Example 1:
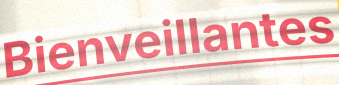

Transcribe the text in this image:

Bienveillantes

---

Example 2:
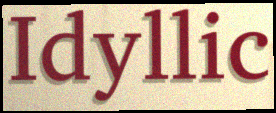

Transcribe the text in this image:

Idyllic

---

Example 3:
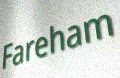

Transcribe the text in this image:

Fareham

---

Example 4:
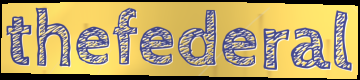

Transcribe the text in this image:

thefederal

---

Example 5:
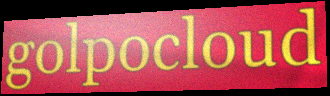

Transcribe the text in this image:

golpocloud